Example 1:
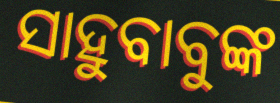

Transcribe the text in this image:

ସାହୁବାବୁଙ୍କ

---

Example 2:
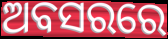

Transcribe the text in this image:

ଅବସରରେ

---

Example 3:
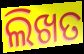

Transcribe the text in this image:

ଲିଖତ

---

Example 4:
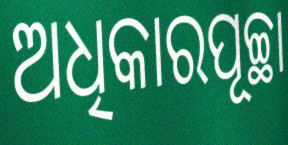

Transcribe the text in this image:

ଅଧିକାରପୂଚ୍ଛା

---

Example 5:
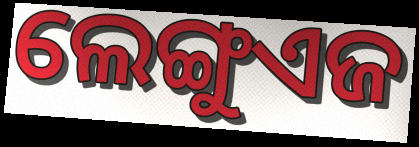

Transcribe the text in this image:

ଲେଙ୍ଗୁଏଜ